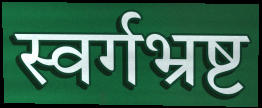
स्वर्गभ्रष्ट